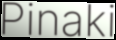
Pinaki